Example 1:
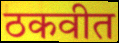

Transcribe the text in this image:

ठकवीत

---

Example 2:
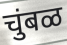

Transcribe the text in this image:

चुंबळ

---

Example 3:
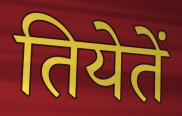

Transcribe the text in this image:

तियेतें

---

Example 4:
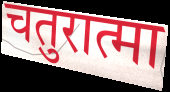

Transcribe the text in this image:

चतुरात्मा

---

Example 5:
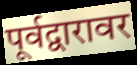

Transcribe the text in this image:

पूर्वद्वारावर